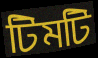
টিমটি